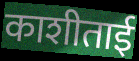
काशीताई